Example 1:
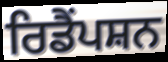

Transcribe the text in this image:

ਰਿਡੈਂਪਸ਼ਨ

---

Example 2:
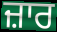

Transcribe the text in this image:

ਜ਼ਾਰ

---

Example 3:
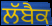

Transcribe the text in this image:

ਲੱਬੈਕ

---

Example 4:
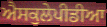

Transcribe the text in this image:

ਐਸਕੁਲੇਪੀਡੀਆ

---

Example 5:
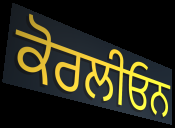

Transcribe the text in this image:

ਕੋਰਲੀਓਨ